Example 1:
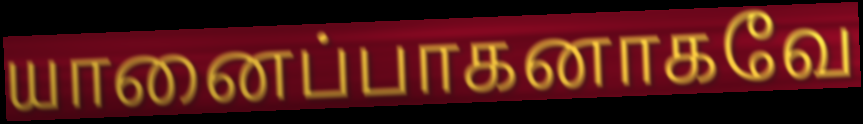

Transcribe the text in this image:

யானைப்பாகனாகவே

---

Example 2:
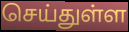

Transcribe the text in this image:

செய்துள்ள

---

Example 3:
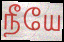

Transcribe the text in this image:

நீயே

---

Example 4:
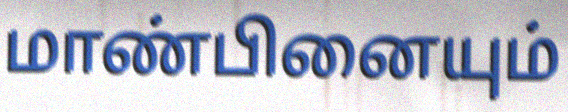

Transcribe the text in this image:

மாண்பினையும்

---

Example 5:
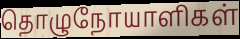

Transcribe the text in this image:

தொழுநோயாளிகள்